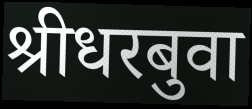
श्रीधरबुवा